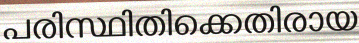
പരിസ്ഥിതിക്കെതിരായ